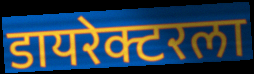
डायरेक्टरला